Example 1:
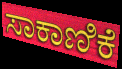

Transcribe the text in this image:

ಸಾಕಾಣಿಕೆ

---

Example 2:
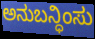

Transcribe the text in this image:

ಅನುಬನ್ಧಿಂಸು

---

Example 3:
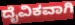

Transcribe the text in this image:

ದೈವಿಕವಾಗಿ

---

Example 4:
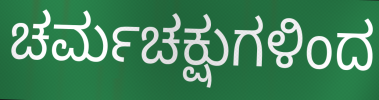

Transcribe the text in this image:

ಚರ್ಮಚಕ್ಷುಗಳಿಂದ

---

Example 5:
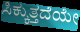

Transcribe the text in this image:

ಸಿಕ್ಕುತ್ತದೆಯೇ